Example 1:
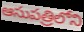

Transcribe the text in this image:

ఆసుపత్రిలోని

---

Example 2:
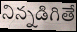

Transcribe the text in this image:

నిన్నడిగితే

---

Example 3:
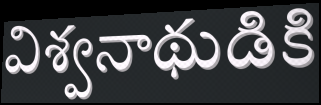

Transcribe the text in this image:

విశ్వనాథుడికి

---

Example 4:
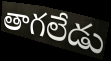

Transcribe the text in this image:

తాగలేడు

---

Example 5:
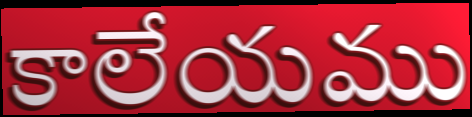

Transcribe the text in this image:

కాలేయము